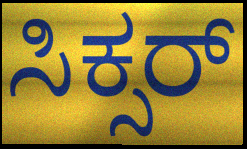
ಸಿಕ್ಸರ್